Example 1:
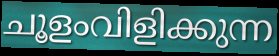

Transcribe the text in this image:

ചൂളംവിളിക്കുന്ന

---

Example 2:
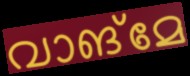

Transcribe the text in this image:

വാങ്മേ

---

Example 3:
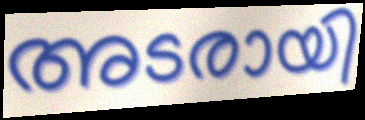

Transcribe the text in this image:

അടരായി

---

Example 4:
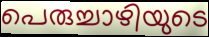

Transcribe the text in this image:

പെരുച്ചാഴിയുടെ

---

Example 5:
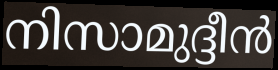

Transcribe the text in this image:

നിസാമുദ്ദീൻ